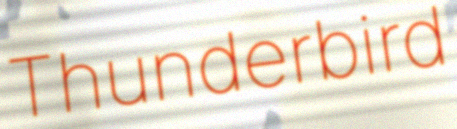
Thunderbird